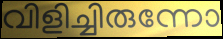
വിളിച്ചിരുന്നോ